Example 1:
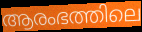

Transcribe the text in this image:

ആരംഭത്തിലെ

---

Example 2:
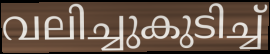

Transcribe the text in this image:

വലിച്ചുകുടിച്ച്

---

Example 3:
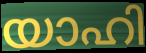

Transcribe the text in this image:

യാഹി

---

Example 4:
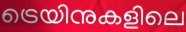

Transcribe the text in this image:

ട്രെയിനുകളിലെ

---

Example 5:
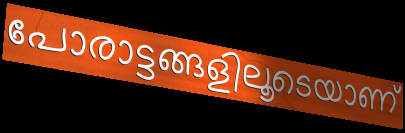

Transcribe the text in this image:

പോരാട്ടങ്ങളിലൂടെയാണ്